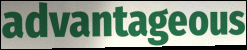
advantageous